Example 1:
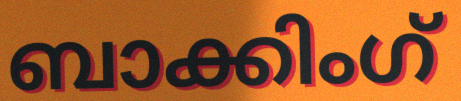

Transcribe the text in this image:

ബാക്കിംഗ്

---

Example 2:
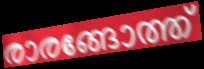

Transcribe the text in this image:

രാരങ്ങോത്ത്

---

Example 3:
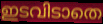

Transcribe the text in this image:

ഇടവിടാതെ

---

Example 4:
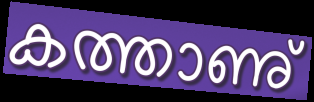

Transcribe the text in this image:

കത്താണു്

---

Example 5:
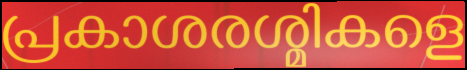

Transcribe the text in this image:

പ്രകാശരശ്മികളെ